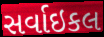
સર્વાઇકલ